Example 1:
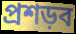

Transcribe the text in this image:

প্রশড়ব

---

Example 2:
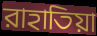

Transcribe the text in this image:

রাহাতিয়া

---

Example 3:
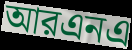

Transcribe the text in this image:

আরএনএ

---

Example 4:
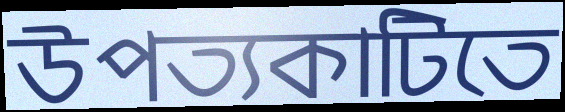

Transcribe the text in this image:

উপত্যকাটিতে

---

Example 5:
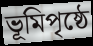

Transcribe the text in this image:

ভূমিপৃষ্ঠে